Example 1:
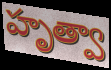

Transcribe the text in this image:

హృత్వా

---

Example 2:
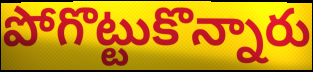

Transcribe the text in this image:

పోగొట్టుకొన్నారు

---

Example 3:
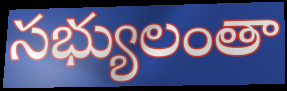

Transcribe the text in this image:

సభ్యులంతా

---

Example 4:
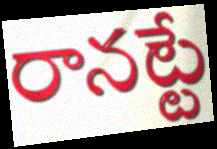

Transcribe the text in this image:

రానట్టే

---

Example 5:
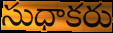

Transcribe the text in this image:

సుధాకరు